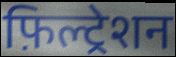
फ़िल्ट्रेशन